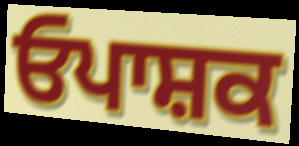
ਓਪਾਸ਼ਕ